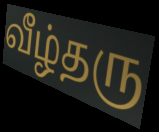
வீழ்தரு